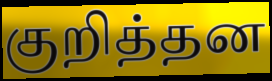
குறித்தன